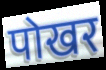
पोखर